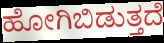
ಹೋಗಿಬಿಡುತ್ತದೆ